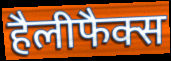
हैलीफैक्स